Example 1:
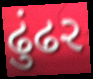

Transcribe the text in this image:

ઢુંઢર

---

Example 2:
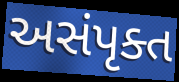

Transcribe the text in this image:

અસંપૃક્ત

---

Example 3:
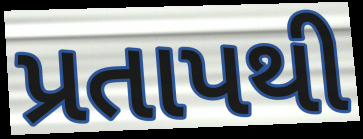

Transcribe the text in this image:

પ્રતાપથી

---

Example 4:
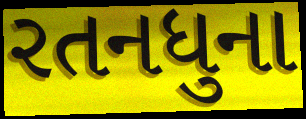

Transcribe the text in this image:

રતનધુના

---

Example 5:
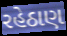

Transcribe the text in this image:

રહેઠાણ